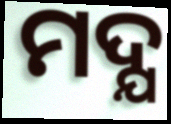
ମଦ୍ଯ